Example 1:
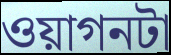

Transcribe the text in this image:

ওয়াগনটা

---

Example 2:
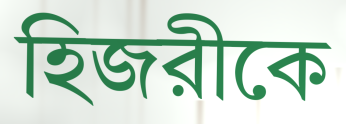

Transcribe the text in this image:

হিজরীকে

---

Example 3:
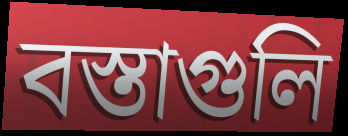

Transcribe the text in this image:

বস্তাগুলি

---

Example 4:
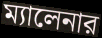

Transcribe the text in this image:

ম্যালেনার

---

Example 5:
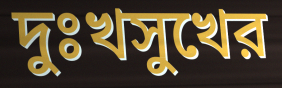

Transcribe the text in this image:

দুঃখসুখের